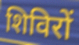
शिविरों